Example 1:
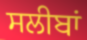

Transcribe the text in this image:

ਸਲੀਬਾਂ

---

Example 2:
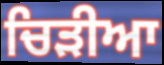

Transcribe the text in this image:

ਚਿੜੀਆ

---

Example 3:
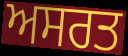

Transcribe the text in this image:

ਅਸਰਤ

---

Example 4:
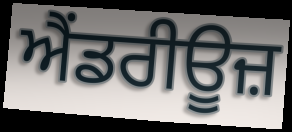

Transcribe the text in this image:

ਐਂਡਰੀਊਜ਼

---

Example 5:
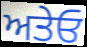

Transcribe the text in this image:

ਅਤੇਓ